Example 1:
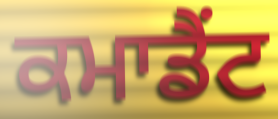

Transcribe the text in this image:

ਕਮਾਡੈਂਟ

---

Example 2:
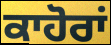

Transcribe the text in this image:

ਕਾਹੋਰਾਂ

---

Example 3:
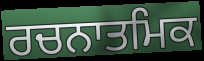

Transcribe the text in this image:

ਰਚਨਾਤਮਿਕ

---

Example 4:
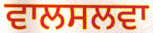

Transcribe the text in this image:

ਵਾਲਸਲਵਾ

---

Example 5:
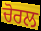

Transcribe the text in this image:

ਚੋਰਲ